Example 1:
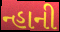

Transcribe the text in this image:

ન્હાની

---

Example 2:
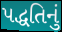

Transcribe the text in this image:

પદ્ધતિનું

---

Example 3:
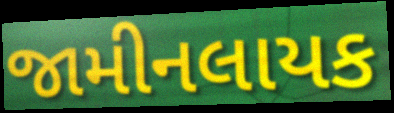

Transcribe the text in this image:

જામીનલાયક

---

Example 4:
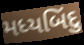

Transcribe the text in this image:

મધ્યબિંદુ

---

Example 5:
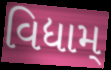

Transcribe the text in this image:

વિદ્યામ્